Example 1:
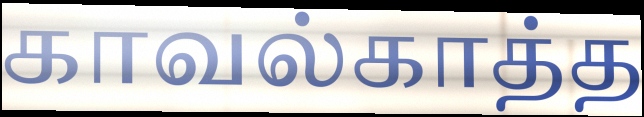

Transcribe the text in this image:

காவல்காத்த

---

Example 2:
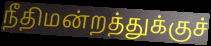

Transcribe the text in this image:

நீதிமன்றத்துக்குச்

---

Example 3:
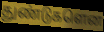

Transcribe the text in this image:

துண்டுகளென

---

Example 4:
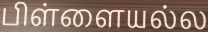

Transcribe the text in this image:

பிள்ளையல்ல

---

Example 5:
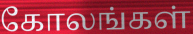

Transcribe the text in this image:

கோலங்கள்